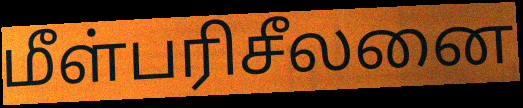
மீள்பரிசீலனை